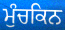
ਮੁੰਚਕਿਨ